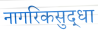
नागरिकसुद्धा